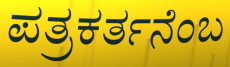
ಪತ್ರಕರ್ತನೆಂಬ